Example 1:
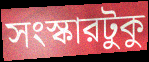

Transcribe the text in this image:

সংস্কারটুকু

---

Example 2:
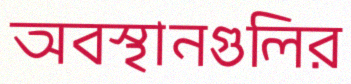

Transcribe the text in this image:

অবস্থানগুলির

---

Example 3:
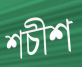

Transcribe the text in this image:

শচীশ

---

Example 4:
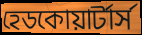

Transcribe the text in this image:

হেডকোয়ার্টার্স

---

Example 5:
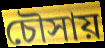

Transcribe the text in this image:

চৌসায়